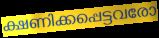
ക്ഷണിക്കപ്പെട്ടവരോ